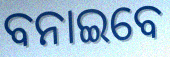
ବନାଇବେ